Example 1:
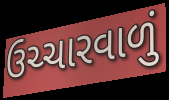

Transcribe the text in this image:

ઉચ્ચારવાળું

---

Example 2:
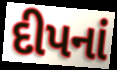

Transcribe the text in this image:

દીપનાં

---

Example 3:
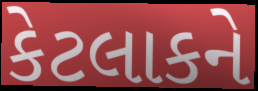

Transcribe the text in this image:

કેટલાકને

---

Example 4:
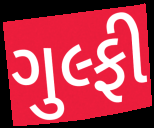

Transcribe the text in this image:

ગુલ્ફી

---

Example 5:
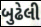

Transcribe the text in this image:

બુઢેલી